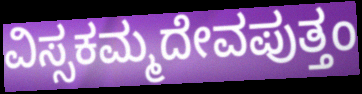
ವಿಸ್ಸಕಮ್ಮದೇವಪುತ್ತಂ